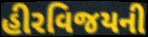
હીરવિજયની